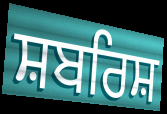
ਸ਼ਬਰਿਸ਼